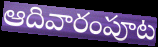
ఆదివారంపూట